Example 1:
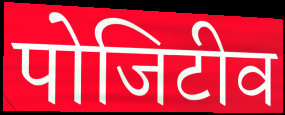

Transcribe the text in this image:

पोजिटीव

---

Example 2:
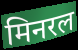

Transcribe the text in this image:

मिनरल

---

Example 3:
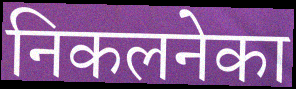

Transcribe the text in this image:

निकलनेका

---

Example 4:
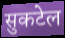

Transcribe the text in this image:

सुकटेल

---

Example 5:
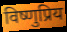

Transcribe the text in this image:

विष्णुप्रिय